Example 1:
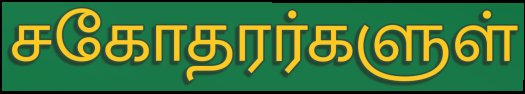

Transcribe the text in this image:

சகோதரர்களுள்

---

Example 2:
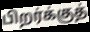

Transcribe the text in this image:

பிறர்க்குத்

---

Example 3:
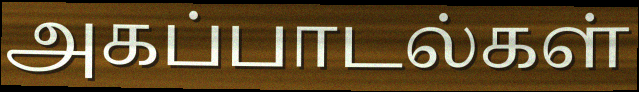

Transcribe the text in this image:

அகப்பாடல்கள்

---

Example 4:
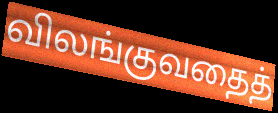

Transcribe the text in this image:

விலங்குவதைத்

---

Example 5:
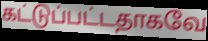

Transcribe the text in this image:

கட்டுப்பட்டதாகவே